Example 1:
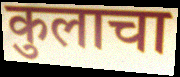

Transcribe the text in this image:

कुलाचा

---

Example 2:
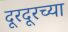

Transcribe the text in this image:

दूरदूरच्या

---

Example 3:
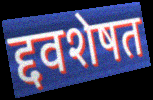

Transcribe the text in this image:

द्दवशेषत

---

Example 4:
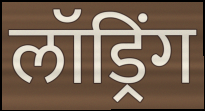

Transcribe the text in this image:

लॉड्रिंग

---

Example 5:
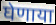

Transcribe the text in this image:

घेणाया